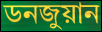
ডনজুয়ান